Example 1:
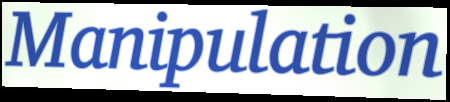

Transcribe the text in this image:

Manipulation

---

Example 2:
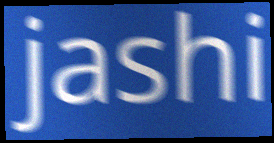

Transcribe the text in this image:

jashi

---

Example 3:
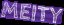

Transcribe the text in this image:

MEITY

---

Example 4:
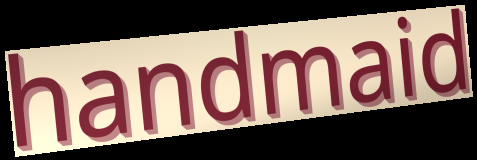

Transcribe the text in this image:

handmaid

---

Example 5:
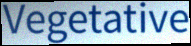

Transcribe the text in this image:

Vegetative